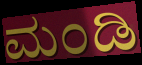
ಮಂಡಿ